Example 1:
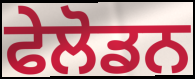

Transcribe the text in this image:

ਫੇਲੋਡਨ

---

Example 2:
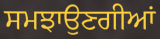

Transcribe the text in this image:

ਸਮਝਾਉਣਗੀਆਂ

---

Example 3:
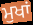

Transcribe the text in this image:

ਮੁਖਾਂ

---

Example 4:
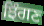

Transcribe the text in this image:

ਝਿੰਗਣ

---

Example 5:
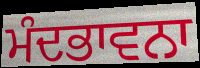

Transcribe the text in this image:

ਮੰਦਭਾਵਨਾ